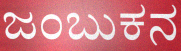
ಜಂಬುಕನ